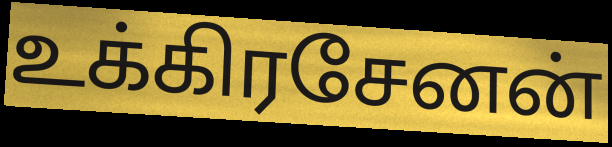
உக்கிரசேனன்